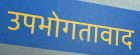
उपभोगतावाद